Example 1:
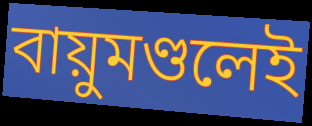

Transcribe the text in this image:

বায়ুমণ্ডলেই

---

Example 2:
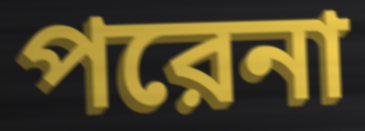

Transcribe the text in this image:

পরেনা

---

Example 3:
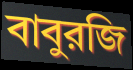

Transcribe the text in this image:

বাবুরজি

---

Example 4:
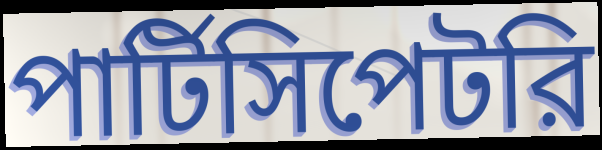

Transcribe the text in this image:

পার্টিসিপেটরি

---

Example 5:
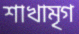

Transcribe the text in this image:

শাখামৃগ